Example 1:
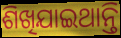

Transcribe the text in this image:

ଶିଖିଯାଇଥାନ୍ତି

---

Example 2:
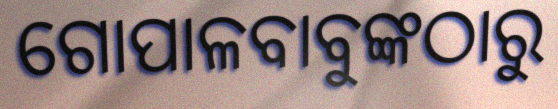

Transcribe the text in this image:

ଗୋପାଳବାବୁଙ୍କଠାରୁ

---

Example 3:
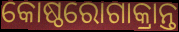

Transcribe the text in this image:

କୋଷ୍ଠରୋଗାକ୍ରାନ୍ତ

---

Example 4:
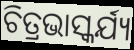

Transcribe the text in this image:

ଚିତ୍ରଭାସ୍କର୍ଯ୍ୟ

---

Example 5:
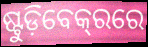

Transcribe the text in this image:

ଷ୍ଟୁଡ଼ିବେକ୍‌ରରେ